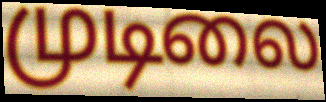
முடிலை